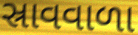
સ્રાવવાળા